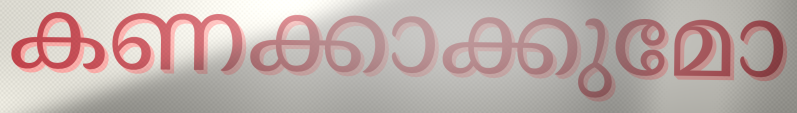
കണക്കാക്കുമോ